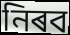
নিৰব